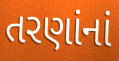
તરણાંનાં